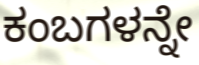
ಕಂಬಗಳನ್ನೇ